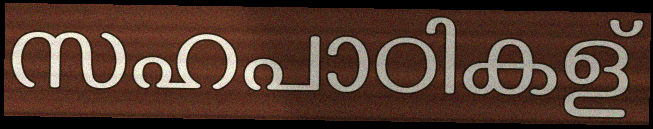
സഹപാഠികള്